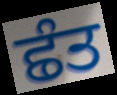
ਛੰਤ